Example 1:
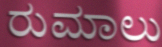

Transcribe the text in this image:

ರುಮಾಲು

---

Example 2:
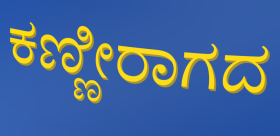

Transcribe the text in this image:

ಕಣ್ಣೀರಾಗದ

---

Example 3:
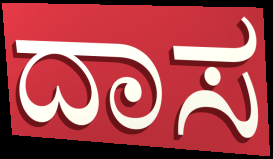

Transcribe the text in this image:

ದಾಸ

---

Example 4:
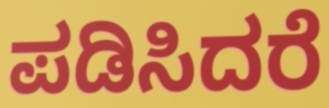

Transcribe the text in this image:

ಪಡಿಸಿದರೆ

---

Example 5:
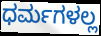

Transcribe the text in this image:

ಧರ್ಮಗಳಲ್ಲ